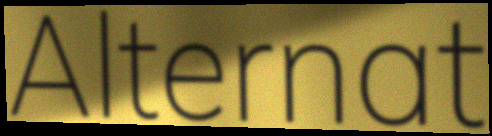
Alternat